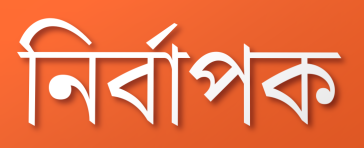
নির্বাপক